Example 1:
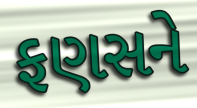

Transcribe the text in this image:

ફણસને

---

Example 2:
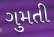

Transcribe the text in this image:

ગુમતી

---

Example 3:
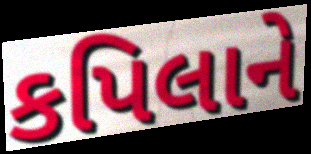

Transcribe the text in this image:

કપિલાને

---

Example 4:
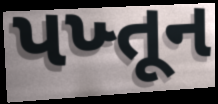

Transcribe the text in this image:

પખ્તૂન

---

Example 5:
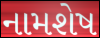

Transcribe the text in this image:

નામશેષ